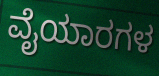
ವೈಯಾರಗಳ